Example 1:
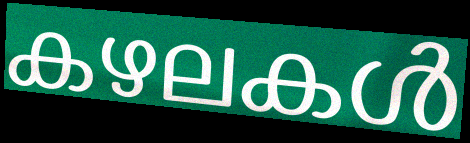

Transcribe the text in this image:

കഴലകൾ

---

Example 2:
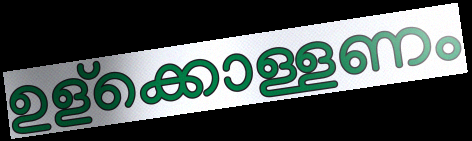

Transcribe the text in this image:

ഉള്ക്കൊള്ളണം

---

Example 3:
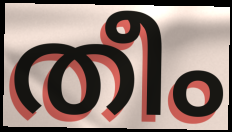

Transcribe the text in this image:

തീം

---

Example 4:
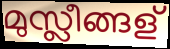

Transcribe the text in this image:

മുസ്ലീങ്ങള്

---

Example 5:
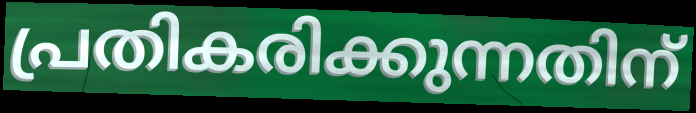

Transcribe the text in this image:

പ്രതികരിക്കുന്നതിന്